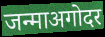
जन्माअगोदर